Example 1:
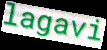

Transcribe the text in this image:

lagavi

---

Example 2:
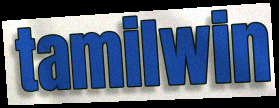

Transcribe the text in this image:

tamilwin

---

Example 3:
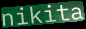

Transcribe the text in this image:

nikita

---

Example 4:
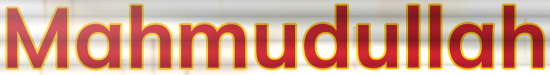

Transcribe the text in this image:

Mahmudullah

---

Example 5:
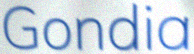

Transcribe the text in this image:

Gondia